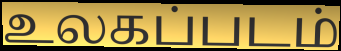
உலகப்படம்